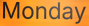
Monday